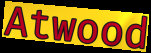
Atwood